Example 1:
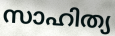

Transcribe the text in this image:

സാഹിത്യ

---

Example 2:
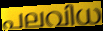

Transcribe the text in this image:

പലവിധ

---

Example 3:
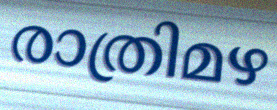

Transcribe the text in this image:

രാത്രിമഴ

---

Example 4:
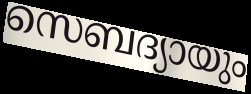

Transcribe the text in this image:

സെബദ്യായും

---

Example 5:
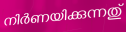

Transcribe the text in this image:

നിർണയിക്കുന്നതു്